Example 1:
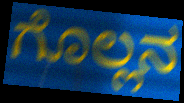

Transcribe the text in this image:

ಗೊಲ್ಲನ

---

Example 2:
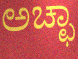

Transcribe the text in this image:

ಅಚ್ಛಾ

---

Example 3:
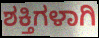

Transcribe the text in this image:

ಶಕ್ತಿಗಳಾಗಿ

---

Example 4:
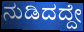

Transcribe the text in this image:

ನುಡಿದದ್ದೇ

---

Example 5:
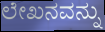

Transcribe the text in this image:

ಲೇಖನವನ್ನು